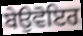
ਬੇਉਵੋਇਰ